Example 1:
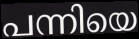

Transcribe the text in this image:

പന്നിയെ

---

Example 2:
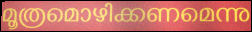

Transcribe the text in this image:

മൂത്രമൊഴിക്കണമെന്നു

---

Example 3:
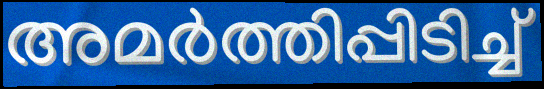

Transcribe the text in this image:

അമർത്തിപ്പിടിച്ച്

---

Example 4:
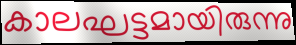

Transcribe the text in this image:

കാലഘട്ടമായിരുന്നു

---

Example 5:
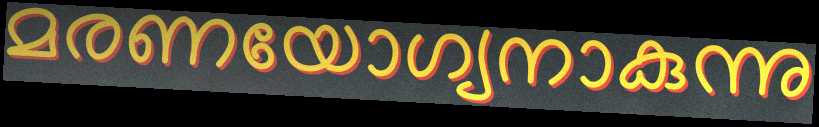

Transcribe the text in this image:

മരണയോഗ്യനാകുന്നു